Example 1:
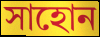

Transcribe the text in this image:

সাহোন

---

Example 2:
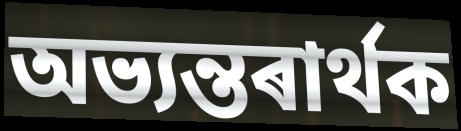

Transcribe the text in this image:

অভ্যন্তৰাৰ্থক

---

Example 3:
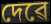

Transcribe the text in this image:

দেৱে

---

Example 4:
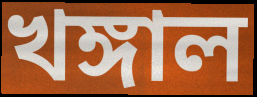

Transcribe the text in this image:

খঙ্গাল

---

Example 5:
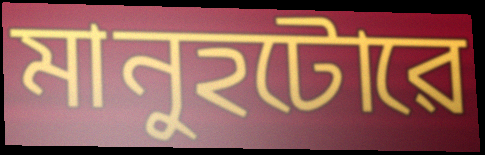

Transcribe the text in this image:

মানুহটোৱে